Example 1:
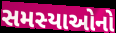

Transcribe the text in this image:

સમસ્યાઓનો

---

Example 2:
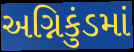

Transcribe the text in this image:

અગ્નિકુંડમાં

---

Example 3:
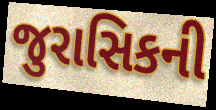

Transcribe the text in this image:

જુરાસિકની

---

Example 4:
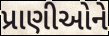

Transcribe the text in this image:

પ્રાણીઓને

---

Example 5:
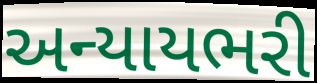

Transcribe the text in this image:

અન્યાયભરી